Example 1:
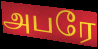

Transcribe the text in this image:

அபரே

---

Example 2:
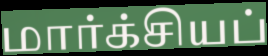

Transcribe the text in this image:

மார்க்சியப்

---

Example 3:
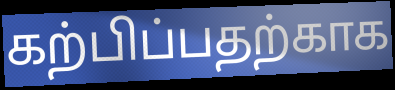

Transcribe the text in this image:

கற்பிப்பதற்காக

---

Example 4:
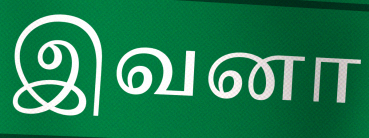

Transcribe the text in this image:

இவனா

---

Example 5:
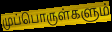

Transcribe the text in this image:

முப்பொருள்களும்